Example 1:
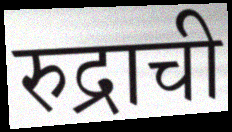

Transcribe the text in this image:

रुद्राची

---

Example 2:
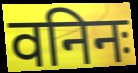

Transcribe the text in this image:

वनिनः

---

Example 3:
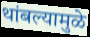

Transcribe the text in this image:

थांबल्यामुळे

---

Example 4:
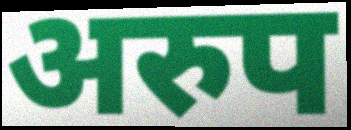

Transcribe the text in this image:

अरुप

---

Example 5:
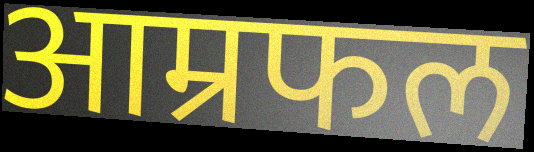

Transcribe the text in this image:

आम्रफल